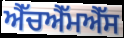
ਐੱਚਐੱਮਐੱਸ